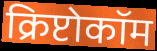
क्रिप्टोकॉम